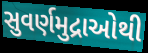
સુવર્ણમુદ્રાઓથી